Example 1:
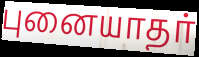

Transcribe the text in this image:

புனையாதர்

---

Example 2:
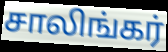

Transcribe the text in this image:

சாலிங்கர்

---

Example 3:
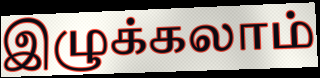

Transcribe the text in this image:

இழுக்கலாம்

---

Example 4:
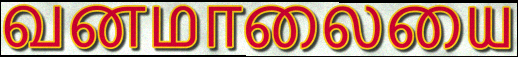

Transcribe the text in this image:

வனமாலையை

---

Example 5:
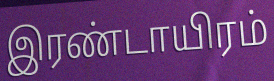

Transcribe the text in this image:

இரண்டாயிரம்